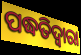
ପଦ୍ଧତିଦ୍ଵାରା